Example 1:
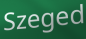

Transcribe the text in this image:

Szeged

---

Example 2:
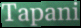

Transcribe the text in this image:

Tapani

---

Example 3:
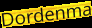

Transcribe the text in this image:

Dordenma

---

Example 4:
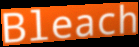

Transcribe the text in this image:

Bleach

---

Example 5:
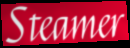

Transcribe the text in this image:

Steamer